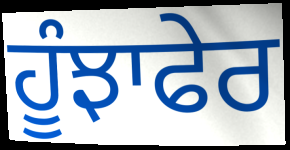
ਹੂੰਝਾਫੇਰ